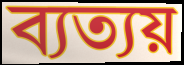
ব্যত্যয়